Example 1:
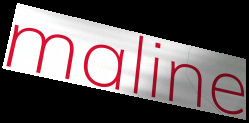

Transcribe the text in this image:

maline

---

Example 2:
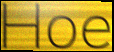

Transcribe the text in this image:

Hoe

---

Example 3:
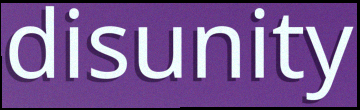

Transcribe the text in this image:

disunity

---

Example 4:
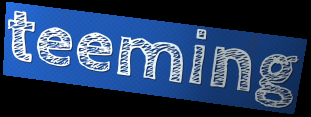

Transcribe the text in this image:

teeming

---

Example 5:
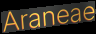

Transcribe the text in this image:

Araneae